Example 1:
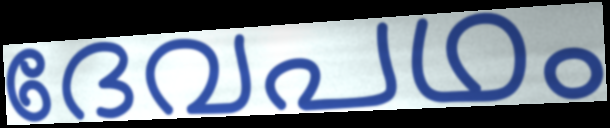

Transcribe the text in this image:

ദേവപഥം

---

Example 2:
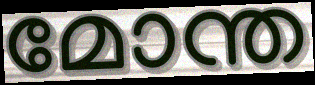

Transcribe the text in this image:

മോന്ത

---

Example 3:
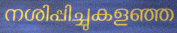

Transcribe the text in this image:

നശിപ്പിച്ചുകളഞ്ഞ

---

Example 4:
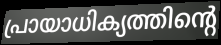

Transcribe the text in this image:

പ്രായാധിക്യത്തിന്റെ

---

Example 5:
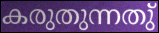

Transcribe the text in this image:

കരുതുന്നതു്